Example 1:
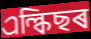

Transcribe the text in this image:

এল্কিছৰ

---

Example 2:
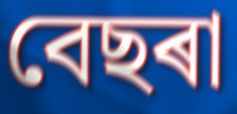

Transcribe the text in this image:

বেছৰা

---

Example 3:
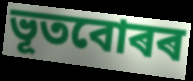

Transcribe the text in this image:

ভূতবোৰৰ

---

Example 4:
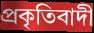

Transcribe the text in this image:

প্ৰকৃতিবাদী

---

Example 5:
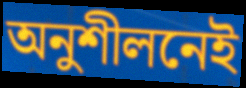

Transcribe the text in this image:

অনুশীলনেই